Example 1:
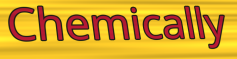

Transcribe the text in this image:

Chemically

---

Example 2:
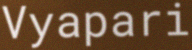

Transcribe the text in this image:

Vyapari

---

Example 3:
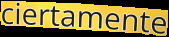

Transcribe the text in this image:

ciertamente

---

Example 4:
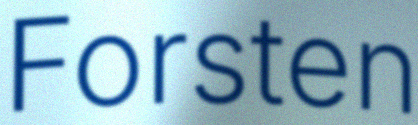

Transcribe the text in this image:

Forsten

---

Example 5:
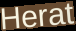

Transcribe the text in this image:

Herat